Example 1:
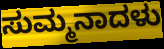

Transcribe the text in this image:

ಸುಮ್ಮನಾದಳು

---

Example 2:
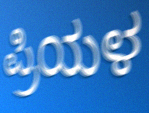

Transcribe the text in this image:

ಪ್ರಿಯಳ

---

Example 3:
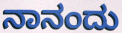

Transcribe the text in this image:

ನಾನಂದು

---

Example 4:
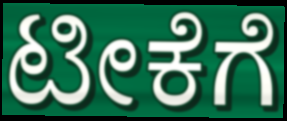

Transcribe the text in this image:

ಟೀಕೆಗೆ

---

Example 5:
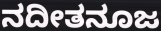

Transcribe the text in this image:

ನದೀತನೂಜ